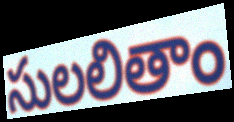
సులలితాం